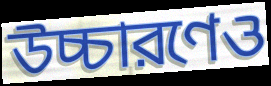
উচ্চারণেও